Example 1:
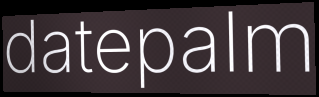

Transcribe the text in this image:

datepalm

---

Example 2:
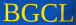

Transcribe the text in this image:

BGCL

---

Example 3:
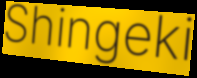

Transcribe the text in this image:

Shingeki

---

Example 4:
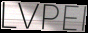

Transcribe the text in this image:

LVPEI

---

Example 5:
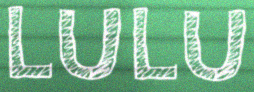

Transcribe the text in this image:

LULU